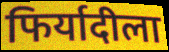
फिर्यादीला